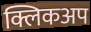
क्लिकअप